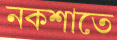
নকশাতে